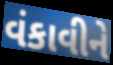
વંકાવીને